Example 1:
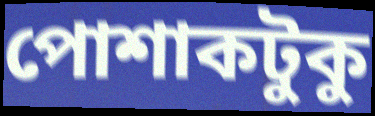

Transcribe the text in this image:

পোশাকটুকু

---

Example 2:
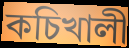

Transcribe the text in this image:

কচিখালী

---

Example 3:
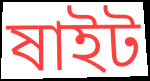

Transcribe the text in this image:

ষাইট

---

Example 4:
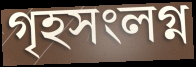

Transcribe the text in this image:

গৃহসংলগ্ন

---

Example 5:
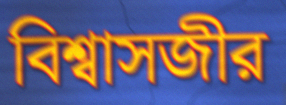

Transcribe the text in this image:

বিশ্বাসজীর